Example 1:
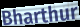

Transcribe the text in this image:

Bharthur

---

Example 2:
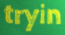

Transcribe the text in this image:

tryin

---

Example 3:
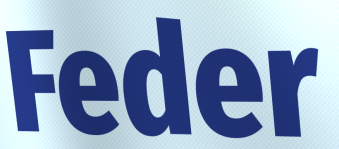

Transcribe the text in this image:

Feder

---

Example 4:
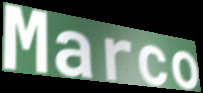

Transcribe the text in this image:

Marco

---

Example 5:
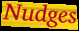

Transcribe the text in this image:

Nudges